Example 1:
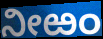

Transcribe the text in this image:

ನೀಱಂ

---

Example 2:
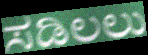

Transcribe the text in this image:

ಸಡಿಲಲು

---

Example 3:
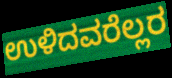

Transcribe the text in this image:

ಉಳಿದವರೆಲ್ಲರ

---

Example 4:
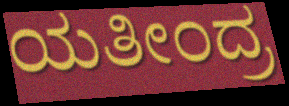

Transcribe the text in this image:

ಯತೀಂದ್ರ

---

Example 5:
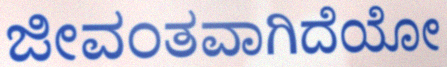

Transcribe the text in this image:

ಜೀವಂತವಾಗಿದೆಯೋ